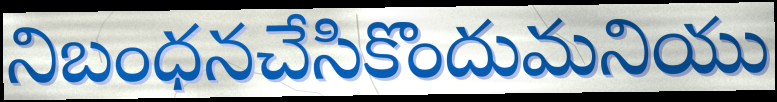
నిబంధనచేసికొందుమనియు